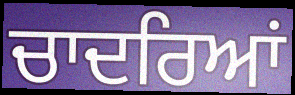
ਚਾਦਰਿਆਂ